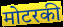
मोटरकी